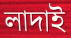
লাদাই